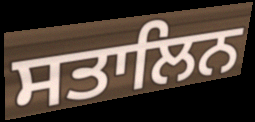
ਸਤਾਲਿਨ